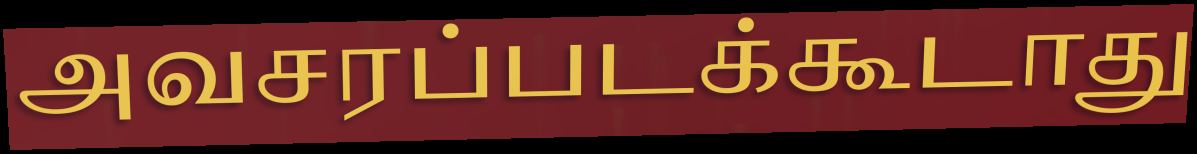
அவசரப்படக்கூடாது